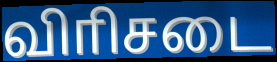
விரிசடை